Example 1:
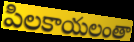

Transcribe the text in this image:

పిలకాయలంతా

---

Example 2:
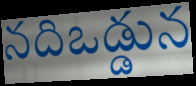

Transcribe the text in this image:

నదిఒడ్డున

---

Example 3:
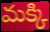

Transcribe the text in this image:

మక్కి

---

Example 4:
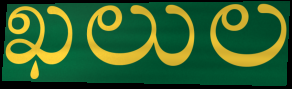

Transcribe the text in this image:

ఖలుల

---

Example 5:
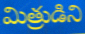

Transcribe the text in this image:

మిత్రుడిని